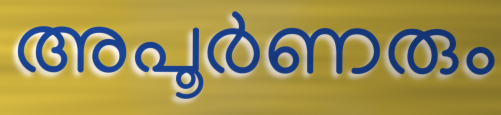
അപൂർണരും